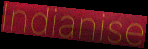
Indianise